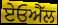
ਏਓਐੱਲ